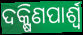
ଦକ୍ଷିଣପାର୍ଶ୍ବ